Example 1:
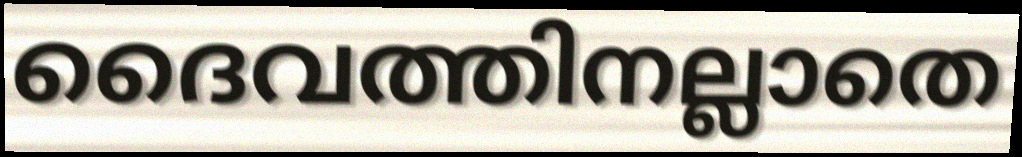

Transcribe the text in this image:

ദൈവത്തിനല്ലാതെ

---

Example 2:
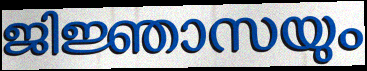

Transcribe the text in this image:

ജിജ്ഞാസയും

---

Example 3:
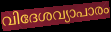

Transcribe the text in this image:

വിദേശവ്യാപാരം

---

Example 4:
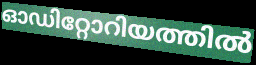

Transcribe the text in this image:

ഓഡിറ്റോറിയത്തിൽ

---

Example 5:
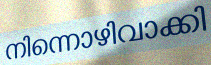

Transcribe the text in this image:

നിന്നൊഴിവാക്കി